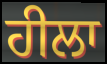
ਹੀਲਾ